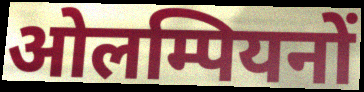
ओलम्पियनों